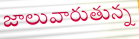
జాలువారుతున్న